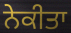
ਨੇਕੀਤਾ